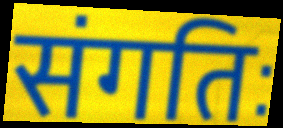
संगतिः